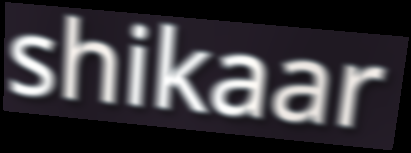
shikaar